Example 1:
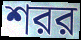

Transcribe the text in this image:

শরর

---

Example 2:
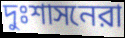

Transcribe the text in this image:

দুঃশাসনেরা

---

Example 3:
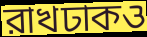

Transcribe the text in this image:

রাখঢাকও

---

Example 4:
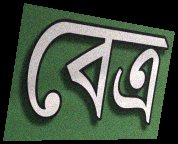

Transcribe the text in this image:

বেত্র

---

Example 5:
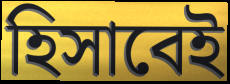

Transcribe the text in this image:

হিসাবেই